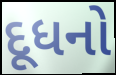
દૂધનો